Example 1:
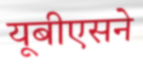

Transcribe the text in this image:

यूबीएसने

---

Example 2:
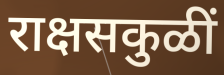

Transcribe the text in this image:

राक्षसकुळीं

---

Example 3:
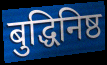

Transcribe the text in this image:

बुद्धिनिष्ठ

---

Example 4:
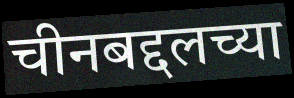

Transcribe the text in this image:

चीनबद्दलच्या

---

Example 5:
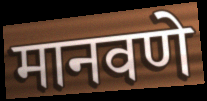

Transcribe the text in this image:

मानवणे